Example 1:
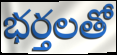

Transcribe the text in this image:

భర్తలతో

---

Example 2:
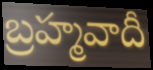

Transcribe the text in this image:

బ్రహ్మవాదీ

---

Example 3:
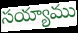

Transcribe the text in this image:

సయ్యాము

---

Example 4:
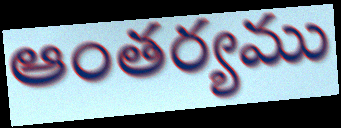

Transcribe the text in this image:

ఆంతర్యము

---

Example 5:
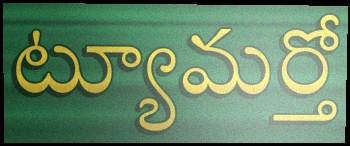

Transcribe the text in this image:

ట్యూమర్తో